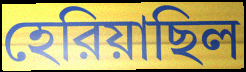
হেরিয়াছিল